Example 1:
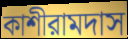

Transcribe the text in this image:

কাশীরামদাস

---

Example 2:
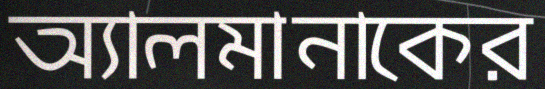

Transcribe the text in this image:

অ্যালমানাকের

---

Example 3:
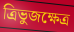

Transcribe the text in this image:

ত্রিভুজক্ষেত্র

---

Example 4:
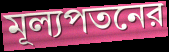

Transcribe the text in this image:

মূল্যপতনের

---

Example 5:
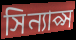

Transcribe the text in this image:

সিন্যাপ্স